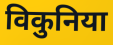
विकुनिया